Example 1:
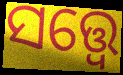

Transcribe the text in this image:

ସତ୍ତ୍ବେ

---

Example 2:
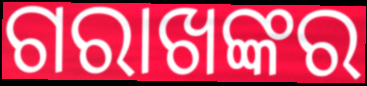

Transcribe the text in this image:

ଗରାଖଙ୍କର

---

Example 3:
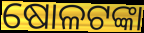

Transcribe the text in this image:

ଷୋଳଟଙ୍କା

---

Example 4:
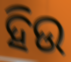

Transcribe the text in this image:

ହିଉ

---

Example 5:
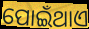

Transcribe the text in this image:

ପୋଇଁଥାଏ